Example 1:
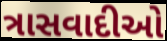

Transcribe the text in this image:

ત્રાસવાદીઓ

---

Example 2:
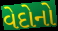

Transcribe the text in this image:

વેદોનો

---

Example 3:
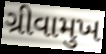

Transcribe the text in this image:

ગ્રીવામુખ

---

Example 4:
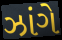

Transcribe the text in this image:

ઝાંગે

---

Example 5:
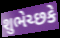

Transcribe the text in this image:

શુભેચ્છકે